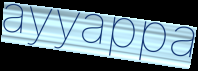
ayyappa